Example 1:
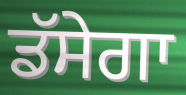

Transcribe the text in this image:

ਡੱਸੇਗਾ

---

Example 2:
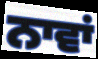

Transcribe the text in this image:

ਨਾਵਾਂ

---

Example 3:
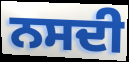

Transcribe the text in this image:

ਨਸਦੀ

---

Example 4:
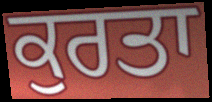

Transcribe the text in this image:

ਕੁਰਤਾ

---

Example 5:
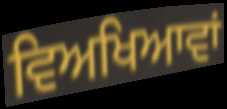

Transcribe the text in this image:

ਵਿਅਖਿਆਵਾਂ